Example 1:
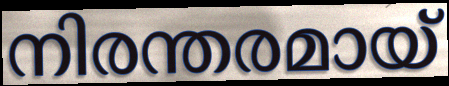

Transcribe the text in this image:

നിരന്തരമായ്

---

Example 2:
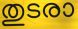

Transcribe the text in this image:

തുടരാ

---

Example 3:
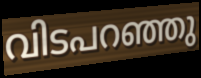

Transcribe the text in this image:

വിടപറഞ്ഞു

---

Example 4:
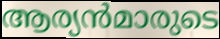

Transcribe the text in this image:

ആര്യൻമാരുടെ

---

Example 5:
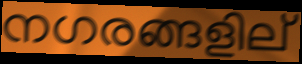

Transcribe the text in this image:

നഗരങ്ങളില്